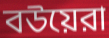
বউয়েরা